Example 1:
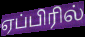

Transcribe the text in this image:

ஏப்பிரில்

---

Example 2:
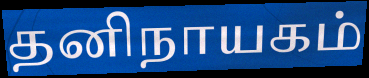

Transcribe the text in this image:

தனிநாயகம்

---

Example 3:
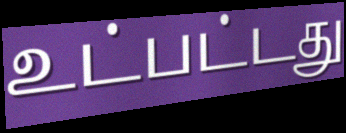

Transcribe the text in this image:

உட்பட்டது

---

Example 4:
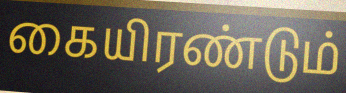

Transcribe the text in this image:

கையிரண்டும்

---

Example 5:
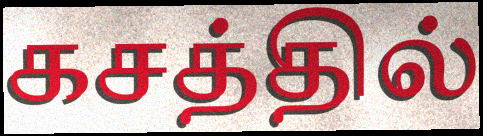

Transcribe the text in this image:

கசத்தில்